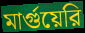
মার্গুয়েরি